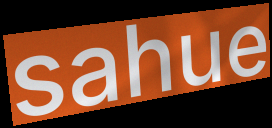
sahue